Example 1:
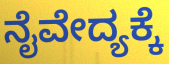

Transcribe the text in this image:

ನೈವೇದ್ಯಕ್ಕೆ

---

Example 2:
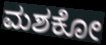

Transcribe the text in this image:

ಮಶಕೋ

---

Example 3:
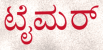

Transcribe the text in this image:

ಟೈಮರ್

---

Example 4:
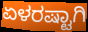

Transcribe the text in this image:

ಏಳರಷ್ಟಾಗಿ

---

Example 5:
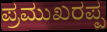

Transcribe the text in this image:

ಪ್ರಮುಖರಪ್ಪ